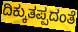
ದಿಕ್ಕುತಪ್ಪದಂತೆ